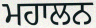
ਮਹਾਲਨ